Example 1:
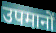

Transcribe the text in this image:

उपमानों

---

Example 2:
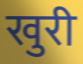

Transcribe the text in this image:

खुरी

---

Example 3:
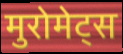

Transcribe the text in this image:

मुरोमेट्स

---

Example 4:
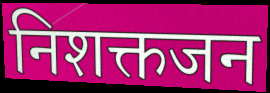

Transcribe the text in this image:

निशक्तजन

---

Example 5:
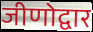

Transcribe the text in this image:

जीणोद्वार